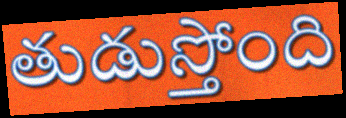
తుడుస్తోంది